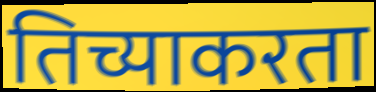
तिच्याकरता